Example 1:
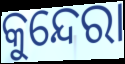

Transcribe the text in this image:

କୁନ୍ଦେରା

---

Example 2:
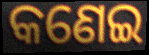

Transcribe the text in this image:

କଣେଇ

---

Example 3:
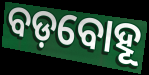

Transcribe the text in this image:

ବଡ଼ବୋହୂ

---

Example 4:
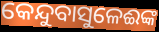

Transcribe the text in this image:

କେନ୍ଦୁବାସୁଳେଈଙ୍କ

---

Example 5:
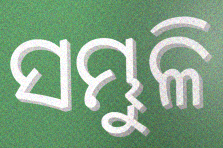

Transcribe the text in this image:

ସମ୍ଭୁଳି